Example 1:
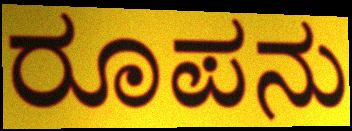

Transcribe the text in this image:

ರೂಪನು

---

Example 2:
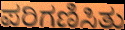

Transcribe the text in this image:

ಪರಿಗಣಿಸಿತು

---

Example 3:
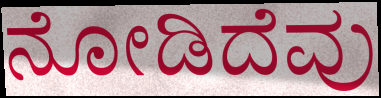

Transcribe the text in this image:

ನೋಡಿದೆವು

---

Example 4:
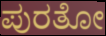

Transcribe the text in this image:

ಪುರತೋ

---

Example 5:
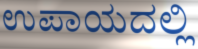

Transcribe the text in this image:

ಉಪಾಯದಲ್ಲಿ